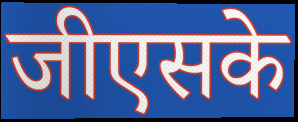
जीएसके